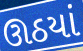
ઊઠયાં